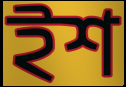
ইশ